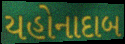
યહોનાદાબ